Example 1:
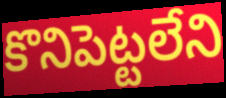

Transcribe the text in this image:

కొనిపెట్టలేని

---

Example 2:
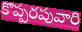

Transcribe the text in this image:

కొప్పరపువారి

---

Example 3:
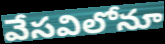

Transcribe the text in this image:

వేసవిలోనూ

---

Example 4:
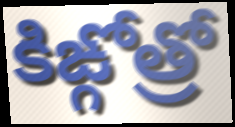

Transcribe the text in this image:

కిఙ్గోత్రో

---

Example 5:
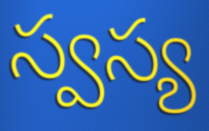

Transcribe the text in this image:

స్వస్య